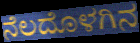
ನೆಲದೊಳಗಿನ